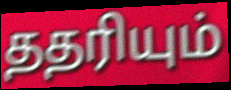
ததரியும்